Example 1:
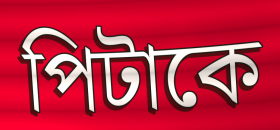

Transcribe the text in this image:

পিটাকে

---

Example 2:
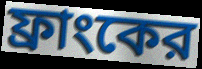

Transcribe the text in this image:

ফ্রাংকের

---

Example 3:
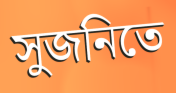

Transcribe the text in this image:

সুজনিতে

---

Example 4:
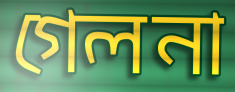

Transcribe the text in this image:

গেলনা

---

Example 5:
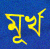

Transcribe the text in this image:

মূর্খ